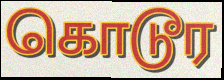
கொடூர